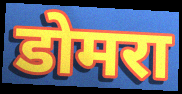
डोमरा